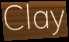
Clay